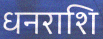
धनराशि